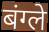
बंग्ले